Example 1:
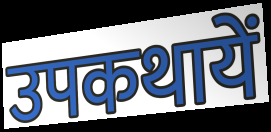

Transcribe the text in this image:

उपकथायें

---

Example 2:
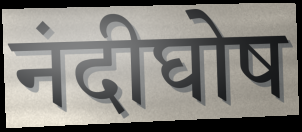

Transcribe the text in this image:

नंदीघोष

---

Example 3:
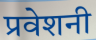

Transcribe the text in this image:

प्रवेशनी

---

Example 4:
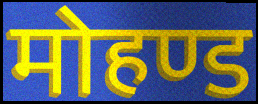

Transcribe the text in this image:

मोहण्ड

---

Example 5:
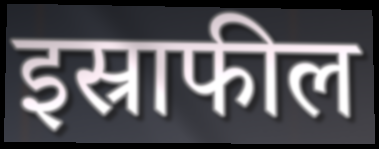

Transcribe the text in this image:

इस्राफील